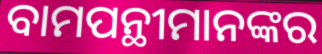
ବାମପନ୍ଥୀମାନଙ୍କର